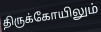
திருக்கோயிலும்